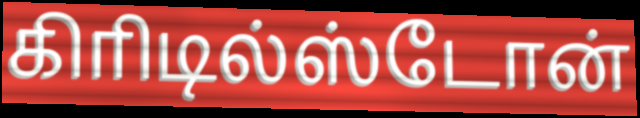
கிரிடில்ஸ்டோன்